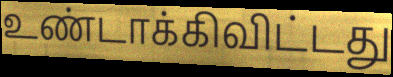
உண்டாக்கிவிட்டது